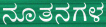
ನೂತನಗಳ